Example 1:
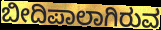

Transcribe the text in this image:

ಬೀದಿಪಾಲಾಗಿರುವ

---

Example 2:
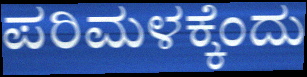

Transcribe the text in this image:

ಪರಿಮಳಕ್ಕೆಂದು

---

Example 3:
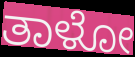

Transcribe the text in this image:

ತಾಳೋ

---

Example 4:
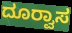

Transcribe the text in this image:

ದೂರ‍್ವಾಸ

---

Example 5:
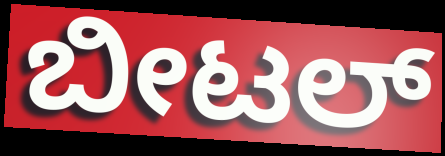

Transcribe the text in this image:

ಬೀಟಲ್